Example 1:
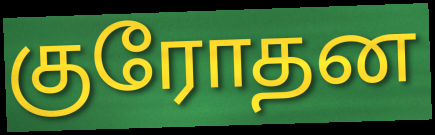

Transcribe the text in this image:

குரோதன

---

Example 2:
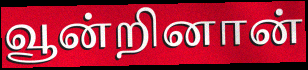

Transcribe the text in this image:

வூன்றினான்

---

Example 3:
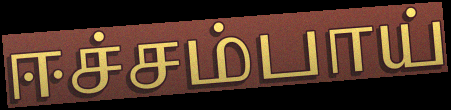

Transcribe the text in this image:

ஈச்சம்பாய்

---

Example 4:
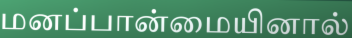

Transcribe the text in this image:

மனப்பான்மையினால்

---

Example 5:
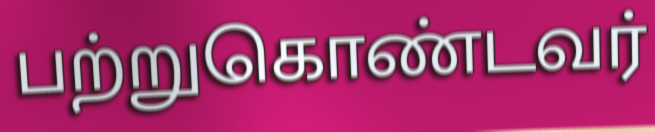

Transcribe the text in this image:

பற்றுகொண்டவர்